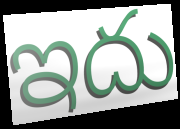
ఇదు